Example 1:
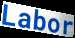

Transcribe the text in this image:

Labor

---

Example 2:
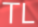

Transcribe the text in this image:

TL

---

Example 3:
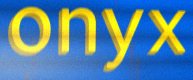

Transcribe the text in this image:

onyx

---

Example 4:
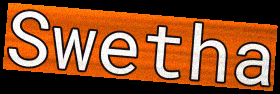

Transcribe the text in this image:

Swetha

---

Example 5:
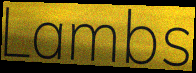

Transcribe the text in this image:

Lambs